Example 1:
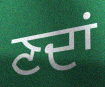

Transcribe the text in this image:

ਣਦਾਂ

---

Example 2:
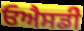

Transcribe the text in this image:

ਓਐਸਡੀ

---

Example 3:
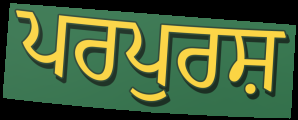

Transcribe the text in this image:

ਪਰਪੁਰਸ਼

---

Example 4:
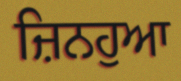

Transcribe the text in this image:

ਜ਼ਿਨਹੁਆ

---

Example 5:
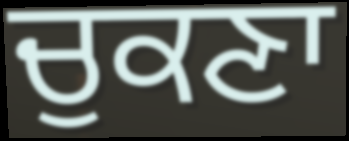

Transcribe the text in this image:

ਚੁਕਣਾ